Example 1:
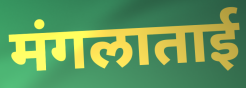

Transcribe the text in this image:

मंगलाताई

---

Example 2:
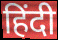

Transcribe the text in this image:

हिंदी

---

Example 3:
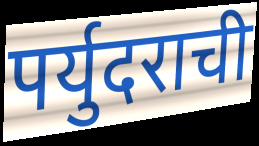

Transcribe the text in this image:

पर्युदराची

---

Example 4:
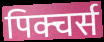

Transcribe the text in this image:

पिक्चर्स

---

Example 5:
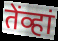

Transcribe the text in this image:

तेंव्हां